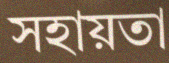
সহায়তা